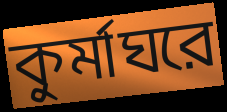
কুর্মাঘরে